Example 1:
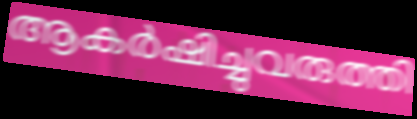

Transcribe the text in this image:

ആകർഷിച്ചുവരുത്തി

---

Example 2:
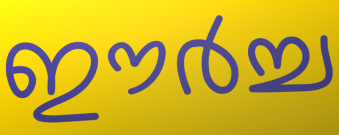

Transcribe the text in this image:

ഈർച്ച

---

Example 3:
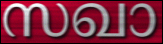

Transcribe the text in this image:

സഖാ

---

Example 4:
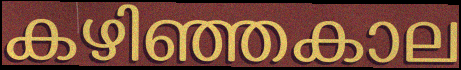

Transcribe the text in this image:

കഴിഞ്ഞകാല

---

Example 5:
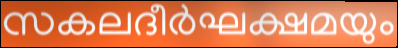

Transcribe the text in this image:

സകലദീർഘക്ഷമയും